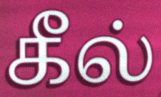
கீல்